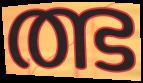
ത്ഭ